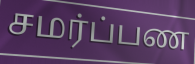
சமர்ப்பண